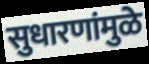
सुधारणांमुळे